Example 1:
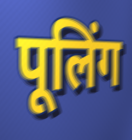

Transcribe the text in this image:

पूलिंग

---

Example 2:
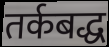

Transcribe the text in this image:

तर्कबद्ध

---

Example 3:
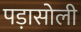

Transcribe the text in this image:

पड़ासोली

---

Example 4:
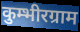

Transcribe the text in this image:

कुम्भीरग्राम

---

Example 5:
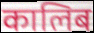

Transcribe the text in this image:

कालिब